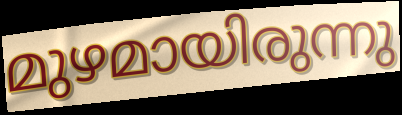
മുഴമായിരുന്നു